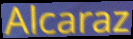
Alcaraz